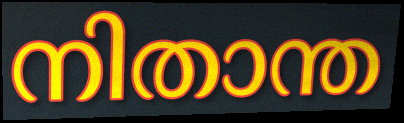
നിതാന്ത